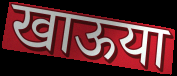
खाऊया